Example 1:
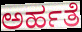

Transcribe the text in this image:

ಅರ್ಹತೆ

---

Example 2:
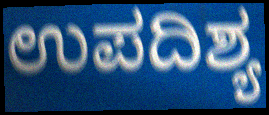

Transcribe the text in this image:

ಉಪದಿಶ್ಯ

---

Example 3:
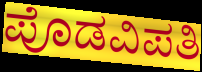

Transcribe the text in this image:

ಪೊಡವಿಪತಿ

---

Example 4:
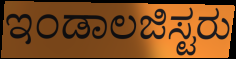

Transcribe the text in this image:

ಇಂಡಾಲಜಿಸ್ಟರು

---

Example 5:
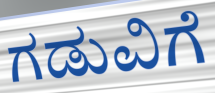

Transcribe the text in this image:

ಗಡುವಿಗೆ